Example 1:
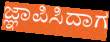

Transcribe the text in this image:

ಜ್ಞಾಪಿಸಿದಾಗ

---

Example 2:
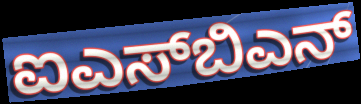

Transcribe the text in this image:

ಐಎಸ್‌ಬಿಎನ್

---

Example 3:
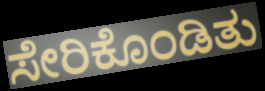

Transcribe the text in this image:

ಸೇರಿಕೊಂಡಿತು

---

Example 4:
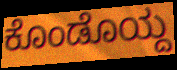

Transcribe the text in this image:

ಕೊಂಡೊಯ್ದ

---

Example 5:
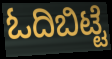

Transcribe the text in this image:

ಓದಿಬಿಟ್ಟೆ